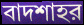
বাদশাহর